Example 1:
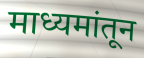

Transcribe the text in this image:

माध्यमांतून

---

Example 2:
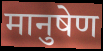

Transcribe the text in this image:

मानुषेण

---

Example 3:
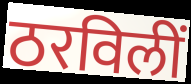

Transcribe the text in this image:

ठरविलीं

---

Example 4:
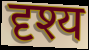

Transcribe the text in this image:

दृश्‍य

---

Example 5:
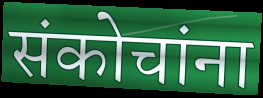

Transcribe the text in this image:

संकोचांना